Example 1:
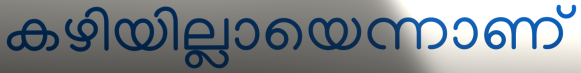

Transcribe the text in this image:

കഴിയില്ലായെന്നാണ്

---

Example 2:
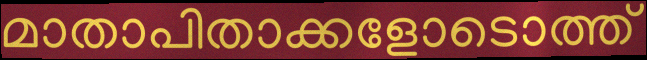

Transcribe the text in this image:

മാതാപിതാക്കളോടൊത്ത്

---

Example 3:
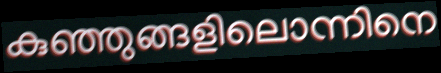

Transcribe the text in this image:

കുഞ്ഞുങ്ങളിലൊന്നിനെ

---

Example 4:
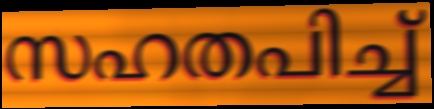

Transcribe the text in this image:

സഹതപിച്ച്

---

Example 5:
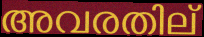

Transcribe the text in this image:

അവരതില്